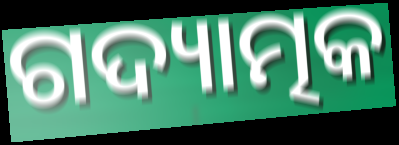
ଗଦ୍ୟାତ୍ମକ